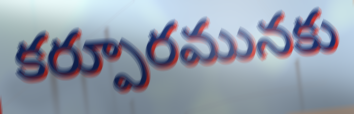
కర్పూరమునకు